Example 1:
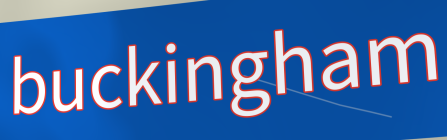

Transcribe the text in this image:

buckingham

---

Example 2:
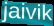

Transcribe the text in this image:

jaivik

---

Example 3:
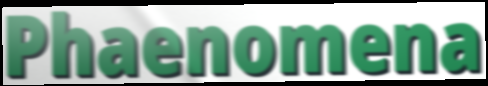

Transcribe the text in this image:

Phaenomena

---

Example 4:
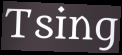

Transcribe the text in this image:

Tsing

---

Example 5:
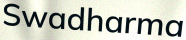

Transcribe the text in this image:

Swadharma